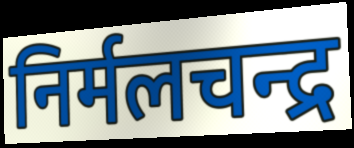
निर्मलचन्द्र